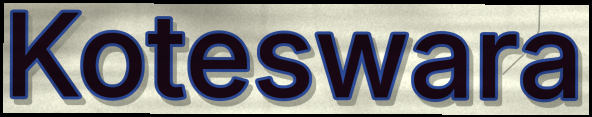
Koteswara